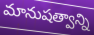
మానుషత్వాన్ని